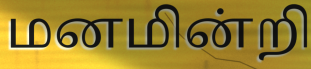
மனமின்றி